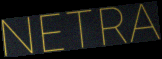
NETRA